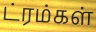
ட்ரம்கள்